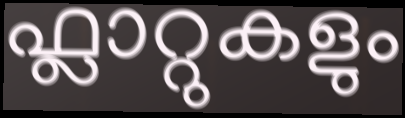
ഫ്ലാറ്റുകളും